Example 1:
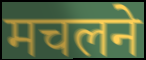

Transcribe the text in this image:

मचलने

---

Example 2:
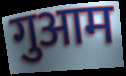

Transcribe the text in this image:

गुआम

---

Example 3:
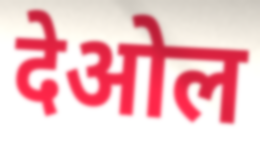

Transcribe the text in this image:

देओल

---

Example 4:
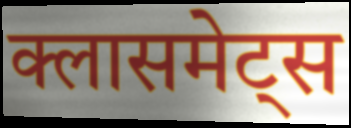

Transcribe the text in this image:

क्लासमेट्स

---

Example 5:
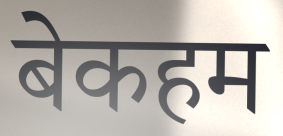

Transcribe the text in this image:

बेकहम